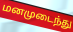
மனமுடைந்து